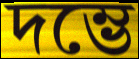
দম্ভে